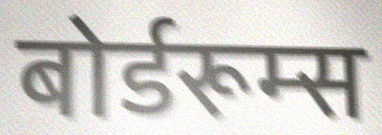
बोर्डरूम्स